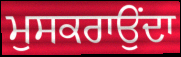
ਮੁਸਕਰਾਉਂਦਾ